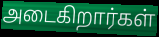
அடைகிறார்கள்